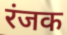
रंजक